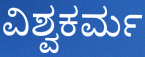
ವಿಶ್ವಕರ್ಮ